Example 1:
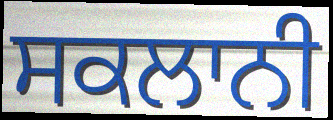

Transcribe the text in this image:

ਸਕਲਾਨੀ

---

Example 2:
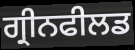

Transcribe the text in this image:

ਗ੍ਰੀਨਫੀਲਡ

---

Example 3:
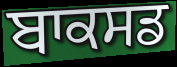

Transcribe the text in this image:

ਬਾਕਸਡ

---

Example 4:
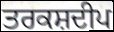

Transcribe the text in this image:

ਤਰਕਸ਼ਦੀਪ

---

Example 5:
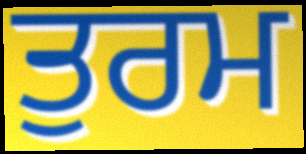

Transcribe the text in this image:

ਤੁਰਮ